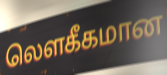
லெளகீகமான